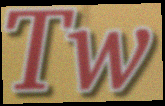
Tw